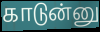
காடுன்னு